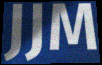
JJM